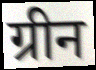
ग्रीन